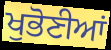
ਖੁਭੋਣੀਆਂ